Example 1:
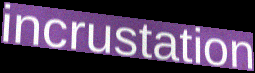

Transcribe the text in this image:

incrustation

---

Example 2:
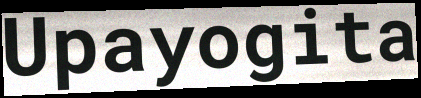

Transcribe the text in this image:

Upayogita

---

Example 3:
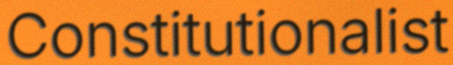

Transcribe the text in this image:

Constitutionalist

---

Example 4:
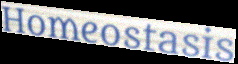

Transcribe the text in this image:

Homeostasis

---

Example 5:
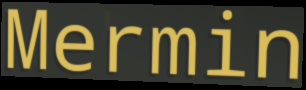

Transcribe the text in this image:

Mermin